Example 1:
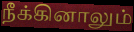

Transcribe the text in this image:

நீக்கினாலும்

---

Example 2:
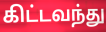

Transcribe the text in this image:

கிட்டவந்து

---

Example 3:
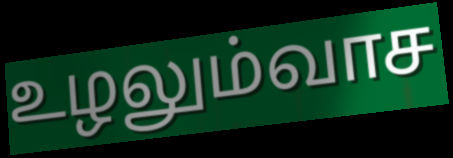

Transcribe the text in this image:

உழலும்வாச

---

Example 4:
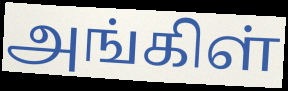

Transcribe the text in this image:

அங்கிள்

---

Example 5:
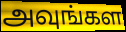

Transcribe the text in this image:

அவுங்கள